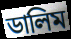
ডালিম